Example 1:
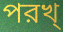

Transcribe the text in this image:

পরখ্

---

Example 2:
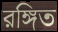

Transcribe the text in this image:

রঙ্গিত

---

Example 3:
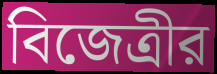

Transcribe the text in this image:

বিজেত্রীর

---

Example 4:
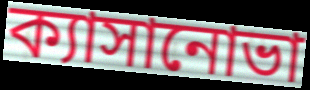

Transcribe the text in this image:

ক্যাসানোভা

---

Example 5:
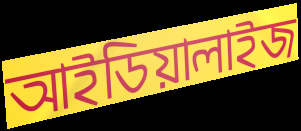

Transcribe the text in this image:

আইডিয়ালাইজ